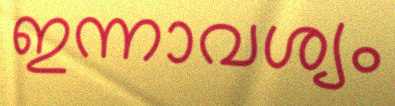
ഇന്നാവശ്യം